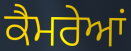
ਕੈਮਰੇਆਂ